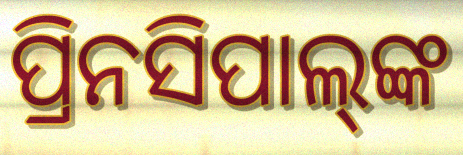
ପ୍ରିନସିପାଲ୍‍ଙ୍କ